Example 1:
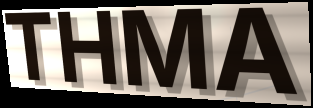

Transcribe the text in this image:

THMA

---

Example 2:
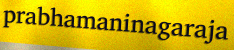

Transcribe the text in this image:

prabhamaninagaraja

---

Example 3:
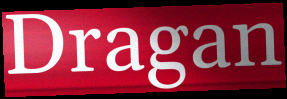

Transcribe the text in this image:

Dragan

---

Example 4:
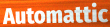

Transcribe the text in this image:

Automattic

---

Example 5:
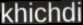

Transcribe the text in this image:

khichdi